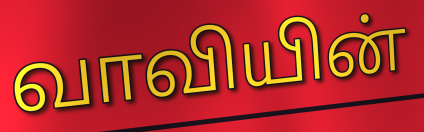
வாவியின்